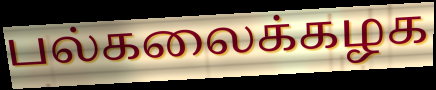
பல்கலைக்கழக